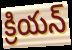
క్రియన్